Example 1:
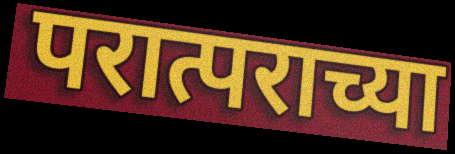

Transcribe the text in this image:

परात्पराच्या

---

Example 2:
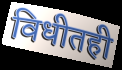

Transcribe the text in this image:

विधीतही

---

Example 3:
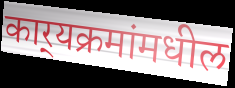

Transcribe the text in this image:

कार्यक्रमांमधील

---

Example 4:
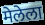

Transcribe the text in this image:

मेलेला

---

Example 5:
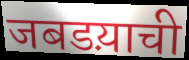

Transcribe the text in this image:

जबडय़ाची